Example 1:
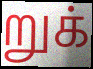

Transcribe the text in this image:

றுக்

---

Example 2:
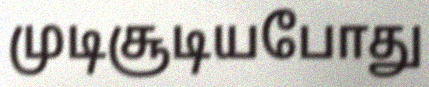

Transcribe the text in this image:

முடிசூடியபோது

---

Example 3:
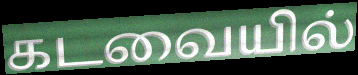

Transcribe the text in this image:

கடவையில்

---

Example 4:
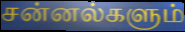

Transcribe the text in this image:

சன்னல்களும்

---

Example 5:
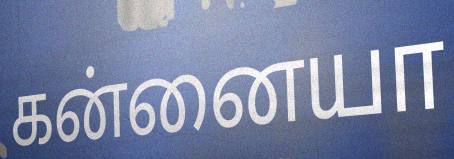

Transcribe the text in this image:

கன்னையா